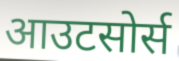
आउटसोर्स